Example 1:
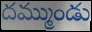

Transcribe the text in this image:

దమ్ముండు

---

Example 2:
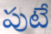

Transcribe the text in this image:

పుటే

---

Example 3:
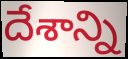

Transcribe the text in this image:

దేశాన్ని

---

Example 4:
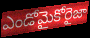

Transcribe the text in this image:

ఎండోమైకోరైజా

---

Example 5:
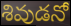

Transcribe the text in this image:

శివుడనో